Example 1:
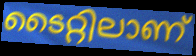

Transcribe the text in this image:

ടൈറ്റിലാണ്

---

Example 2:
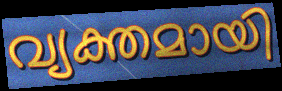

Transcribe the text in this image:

വ്യക്തമായി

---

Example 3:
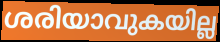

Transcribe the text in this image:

ശരിയാവുകയില്ല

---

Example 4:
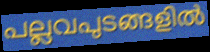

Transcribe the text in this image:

പല്ലവപുടങ്ങളിൽ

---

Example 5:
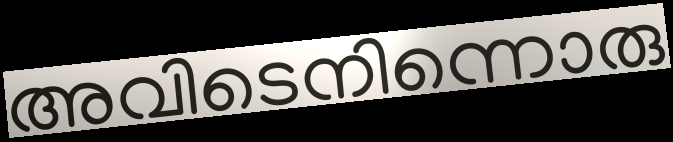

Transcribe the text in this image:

അവിടെനിന്നൊരു